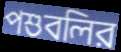
পশুবলির